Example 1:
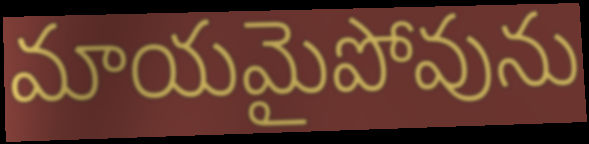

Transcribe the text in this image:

మాయమైపోవును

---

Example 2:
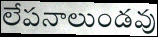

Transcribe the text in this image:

లేపనాలుండవు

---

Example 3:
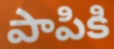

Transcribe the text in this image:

పాపికి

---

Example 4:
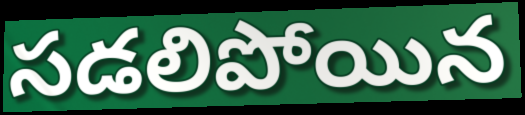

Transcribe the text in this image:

సడలిపోయిన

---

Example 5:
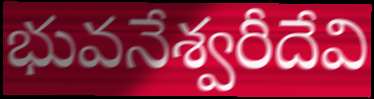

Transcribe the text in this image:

భువనేశ్వరీదేవి